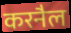
करनैल